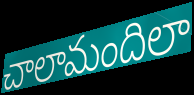
చాలామందిలా